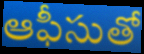
ఆఫీసుతో